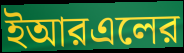
ইআরএলের